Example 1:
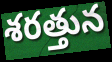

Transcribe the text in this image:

శరత్తున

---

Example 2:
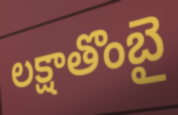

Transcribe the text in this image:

లక్షాతొంబై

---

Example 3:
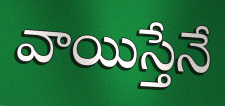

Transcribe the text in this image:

వాయిస్తేనే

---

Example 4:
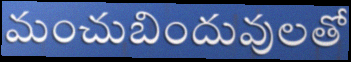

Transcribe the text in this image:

మంచుబిందువులతో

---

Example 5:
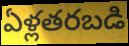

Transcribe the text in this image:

ఏళ్లతరబడి